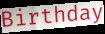
Birthday